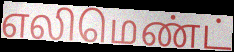
எலிமெண்ட்